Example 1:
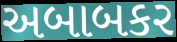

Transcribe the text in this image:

અબાબકર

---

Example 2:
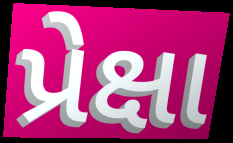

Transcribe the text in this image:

પ્રેક્ષા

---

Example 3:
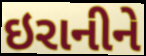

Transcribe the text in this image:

ઇરાનીને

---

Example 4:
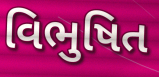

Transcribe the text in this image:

વિભુષિત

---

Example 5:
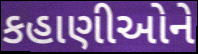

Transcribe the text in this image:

કહાણીઓને